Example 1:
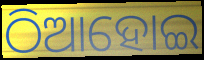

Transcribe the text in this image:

ଠିଆହୋଇ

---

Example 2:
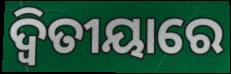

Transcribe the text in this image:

ଦ୍ୱିତୀୟାରେ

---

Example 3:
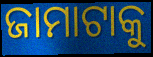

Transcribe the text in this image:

ଜାମାଟାକୁ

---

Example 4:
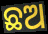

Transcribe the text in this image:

ଛଅ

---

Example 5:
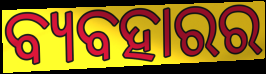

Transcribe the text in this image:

ବ୍ୟବହାରର